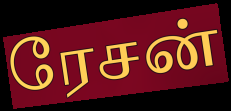
ரேசன்